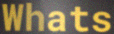
Whats